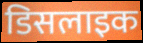
डिसलाइक